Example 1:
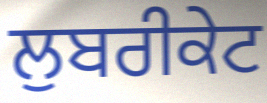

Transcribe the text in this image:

ਲੁਬਰੀਕੇਟ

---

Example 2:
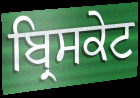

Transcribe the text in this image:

ਬ੍ਰਿਸਕੇਟ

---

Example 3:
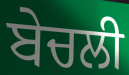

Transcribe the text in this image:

ਬੇਚਲੀ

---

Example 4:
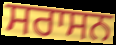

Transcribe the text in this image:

ਸਰਾਸਨ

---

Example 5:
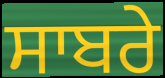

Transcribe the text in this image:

ਸਾਬਰੇ